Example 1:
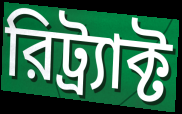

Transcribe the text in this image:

রিট্র্যাক্ট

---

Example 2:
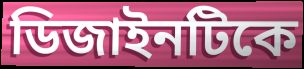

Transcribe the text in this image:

ডিজাইনটিকে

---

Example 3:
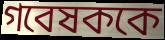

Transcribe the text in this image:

গবেষককে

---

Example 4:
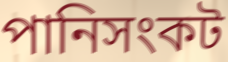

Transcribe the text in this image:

পানিসংকট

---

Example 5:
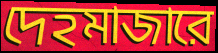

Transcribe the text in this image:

দেহমাজারে